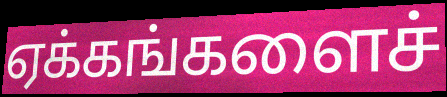
ஏக்கங்களைச்